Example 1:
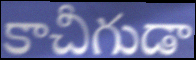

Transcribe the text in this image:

కాచీగుడా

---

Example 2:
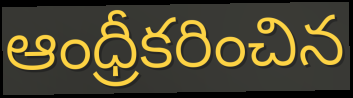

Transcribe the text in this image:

ఆంధ్రీకరించిన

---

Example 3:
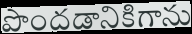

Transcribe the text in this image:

పొందడానికిగాను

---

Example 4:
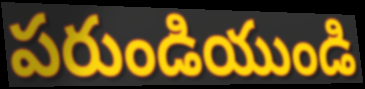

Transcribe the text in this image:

పరుండియుండి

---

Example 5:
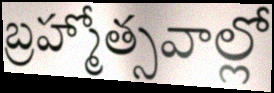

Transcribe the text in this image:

బ్రహ్మోత్సవాల్లో